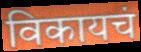
विकायचं